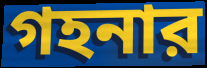
গহনার